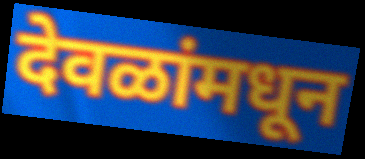
देवळांमधून